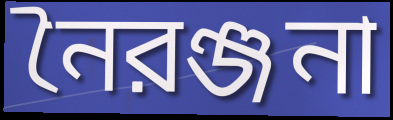
নৈরঞ্জনা